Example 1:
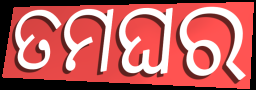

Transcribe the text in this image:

ତମଘର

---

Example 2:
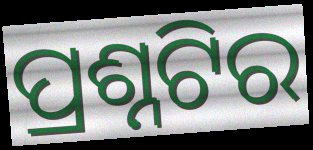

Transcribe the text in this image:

ପ୍ରଶ୍ନଟିର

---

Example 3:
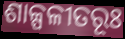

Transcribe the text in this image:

ଶାଳ୍ପଳୀତରୂଃ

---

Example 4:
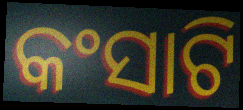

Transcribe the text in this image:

କଂସାଟି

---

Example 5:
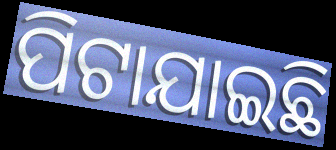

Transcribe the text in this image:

ପିଟାଯାଇଛି